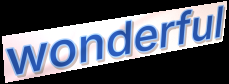
wonderful